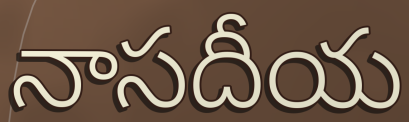
నాసదీయ